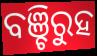
ବଞ୍ଚିରୁହ